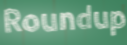
Roundup